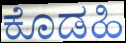
ಕೊಡಹಿ